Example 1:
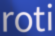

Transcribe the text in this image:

roti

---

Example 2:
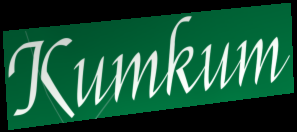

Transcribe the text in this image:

Kumkum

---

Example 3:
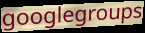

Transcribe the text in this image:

googlegroups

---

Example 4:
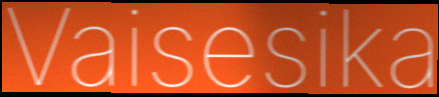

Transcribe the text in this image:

Vaisesika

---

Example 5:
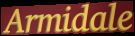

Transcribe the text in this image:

Armidale